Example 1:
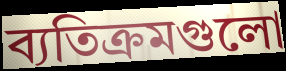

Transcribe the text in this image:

ব্যতিক্রমগুলো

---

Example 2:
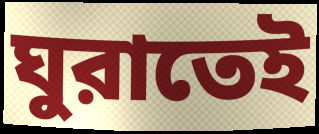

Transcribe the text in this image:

ঘুরাতেই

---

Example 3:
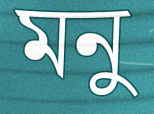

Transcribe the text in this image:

মনু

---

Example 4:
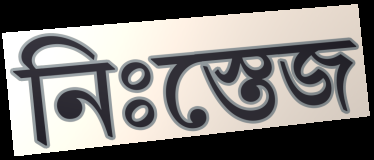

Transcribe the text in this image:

নিঃস্তেজ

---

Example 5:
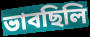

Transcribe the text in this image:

ভাবছিলি